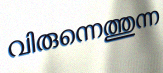
വിരുന്നെത്തുന്ന